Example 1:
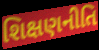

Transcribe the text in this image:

શિક્ષણનીતિ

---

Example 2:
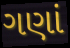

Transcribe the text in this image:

ગણાં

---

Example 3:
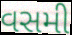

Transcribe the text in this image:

વસમી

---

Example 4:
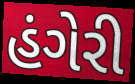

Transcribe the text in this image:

હંગેરી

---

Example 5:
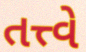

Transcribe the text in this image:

તત્ત્વે